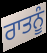
ਰਾਤਨੂੰ